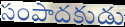
సంపాదకుడు